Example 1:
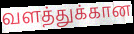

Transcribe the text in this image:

வளத்துக்கான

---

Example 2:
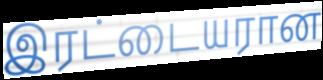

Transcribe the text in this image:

இரட்டையரான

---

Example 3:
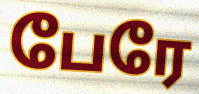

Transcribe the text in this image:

பேரே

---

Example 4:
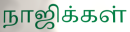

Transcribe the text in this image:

நாஜிக்கள்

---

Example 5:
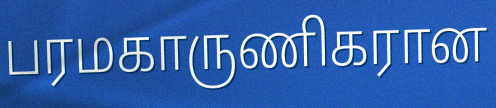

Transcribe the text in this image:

பரமகாருணிகரான